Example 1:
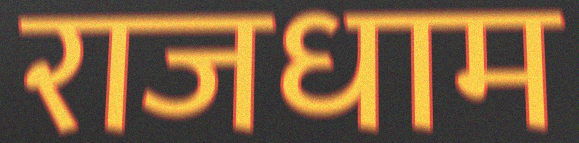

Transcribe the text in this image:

राजधाम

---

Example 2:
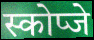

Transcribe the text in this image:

स्कोप्जे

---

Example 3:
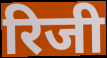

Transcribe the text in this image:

रिजी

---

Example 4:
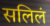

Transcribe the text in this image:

सलिलं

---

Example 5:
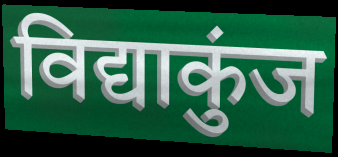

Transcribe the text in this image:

विद्याकुंज